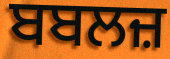
ਬਬਲਜ਼